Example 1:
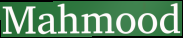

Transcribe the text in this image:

Mahmood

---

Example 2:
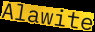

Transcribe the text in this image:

Alawite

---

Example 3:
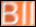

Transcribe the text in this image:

BIl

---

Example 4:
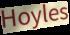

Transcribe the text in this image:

Hoyles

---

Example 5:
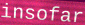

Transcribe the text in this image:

insofar